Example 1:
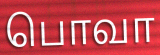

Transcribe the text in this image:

பொவா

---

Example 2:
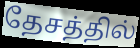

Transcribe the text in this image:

தேசத்தில்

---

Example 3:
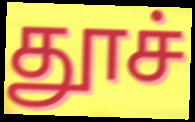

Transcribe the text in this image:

தூச்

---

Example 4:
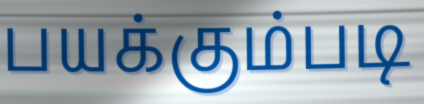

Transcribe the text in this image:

பயக்கும்படி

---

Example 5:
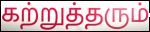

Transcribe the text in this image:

கற்றுத்தரும்